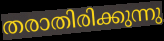
തരാതിരിക്കുന്നു